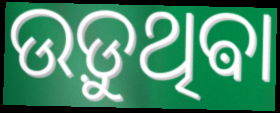
ଉଡ଼ୁଥିଵା